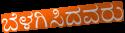
ಬೆಳಗಿಸಿದವರು